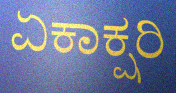
ಏಕಾಕ್ಷರಿ